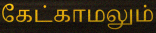
கேட்காமலும்